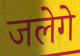
जलेगे